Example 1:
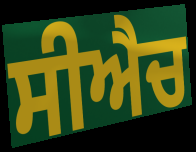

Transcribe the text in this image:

ਸੀਐਚ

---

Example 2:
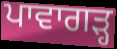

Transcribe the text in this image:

ਪਾਵਾਗੜ੍ਹ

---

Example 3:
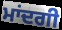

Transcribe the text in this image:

ਮਾਂਦਗੀ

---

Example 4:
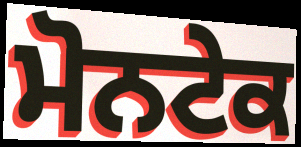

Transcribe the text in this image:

ਮੋਨਟੇਕ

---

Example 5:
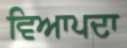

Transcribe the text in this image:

ਵਿਆਪਦਾ